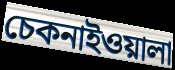
চেকনাইওয়ালা